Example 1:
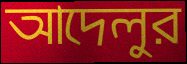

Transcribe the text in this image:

আদেলুর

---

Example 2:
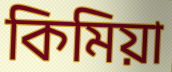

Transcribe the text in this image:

কিমিয়া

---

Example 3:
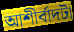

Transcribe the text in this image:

আশীর্বাদটা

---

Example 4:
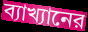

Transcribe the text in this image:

ব্যাখ্যানের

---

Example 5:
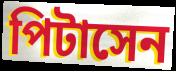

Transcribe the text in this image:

পিটাসেন